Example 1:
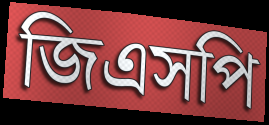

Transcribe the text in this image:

জিএসপি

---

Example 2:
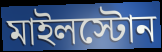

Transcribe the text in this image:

মাইলস্টোন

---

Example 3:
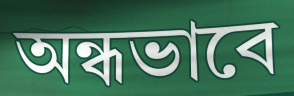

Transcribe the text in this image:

অন্ধভাবে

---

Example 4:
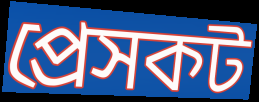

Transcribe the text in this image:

প্রেসকট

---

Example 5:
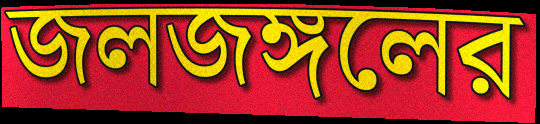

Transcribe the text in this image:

জলজঙ্গলের